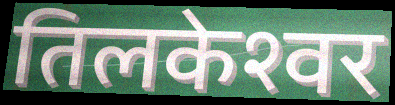
तिलकेश्वर